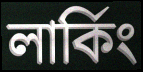
লার্কিং